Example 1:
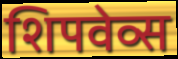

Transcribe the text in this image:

शिपवेव्स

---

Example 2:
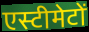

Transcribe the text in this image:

एस्टीमेटों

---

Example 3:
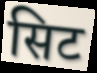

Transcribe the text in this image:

सिट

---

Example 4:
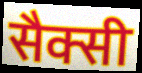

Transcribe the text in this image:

सैक्सी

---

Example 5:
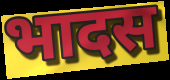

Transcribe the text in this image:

भादस